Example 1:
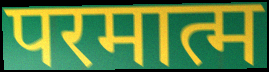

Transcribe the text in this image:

परमात्म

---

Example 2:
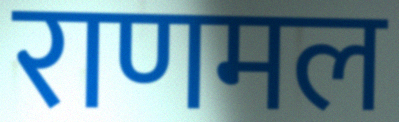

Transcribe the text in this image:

राणमल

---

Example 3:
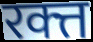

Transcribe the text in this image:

रक्त्त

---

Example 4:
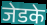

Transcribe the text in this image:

जेडके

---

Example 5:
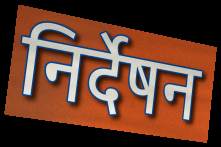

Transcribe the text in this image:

निर्देषन